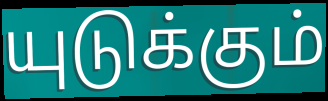
யுடுக்கும்